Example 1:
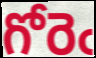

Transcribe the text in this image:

గోరెఁ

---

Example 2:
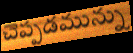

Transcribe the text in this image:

చెప్పడమున్ను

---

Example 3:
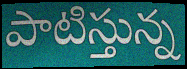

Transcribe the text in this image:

పాటిస్తున్న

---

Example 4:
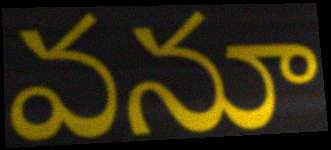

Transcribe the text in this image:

వనూ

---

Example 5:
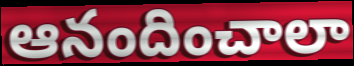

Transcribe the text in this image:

ఆనందించాలా